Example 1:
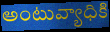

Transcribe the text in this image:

అంటువ్యాధికి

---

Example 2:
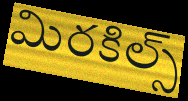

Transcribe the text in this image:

మిరకిల్స్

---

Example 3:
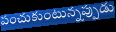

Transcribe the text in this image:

పంచుకుంటున్నప్పుడు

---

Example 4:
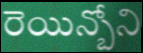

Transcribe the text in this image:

రెయిన్బోని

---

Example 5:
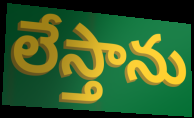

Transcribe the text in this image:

లేస్తాను